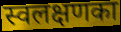
स्वलक्षणका